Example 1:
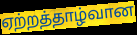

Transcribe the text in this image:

ஏற்றத்தாழ்வான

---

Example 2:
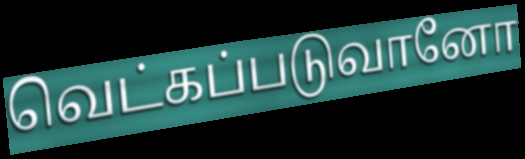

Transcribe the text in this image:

வெட்கப்படுவானோ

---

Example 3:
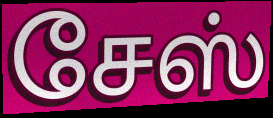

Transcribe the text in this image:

சேஸ்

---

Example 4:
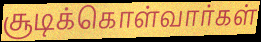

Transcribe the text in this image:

சூடிக்கொள்வார்கள்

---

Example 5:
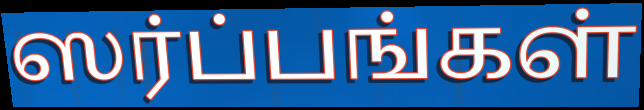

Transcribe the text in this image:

ஸர்ப்பங்கள்